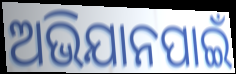
ଅଭିଯାନପାଇଁ